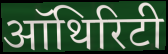
ऑथिरिटी